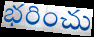
భరించు